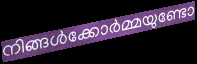
നിങ്ങൾക്കോർമ്മയുണ്ടോ